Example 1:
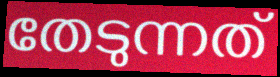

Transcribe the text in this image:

തേടുന്നത്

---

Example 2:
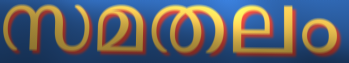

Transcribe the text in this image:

സമതലം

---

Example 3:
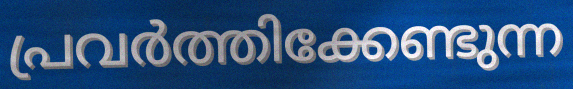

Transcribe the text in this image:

പ്രവർത്തിക്കേണ്ടുന്ന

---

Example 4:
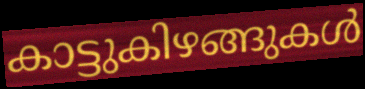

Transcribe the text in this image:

കാട്ടുകിഴങ്ങുകൾ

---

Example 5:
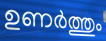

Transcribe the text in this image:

ഉണർത്തും